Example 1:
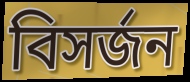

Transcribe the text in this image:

বিসর্জন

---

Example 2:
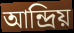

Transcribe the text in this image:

আন্দ্রিয়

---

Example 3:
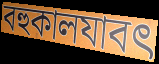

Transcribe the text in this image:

বহুকালযাবৎ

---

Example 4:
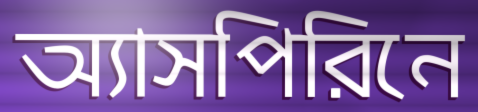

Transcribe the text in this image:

অ্যাসপিরিনে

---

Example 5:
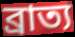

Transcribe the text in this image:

ব্রাত্য